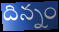
దిన్నం